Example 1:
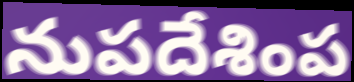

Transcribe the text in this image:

నుపదేశింప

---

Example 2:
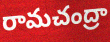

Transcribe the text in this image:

రామచంద్రా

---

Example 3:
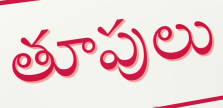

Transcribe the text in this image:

తూపులు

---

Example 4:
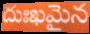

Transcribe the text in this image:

దుఃఖమైన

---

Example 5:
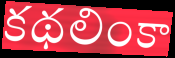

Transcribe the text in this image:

కథలింకా